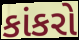
કાંકરો